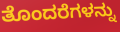
ತೊಂದರೆಗಳನ್ನು